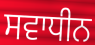
ਸਵਾਧੀਨ